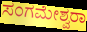
ಸಂಗಮೇಶ್ವರಾ